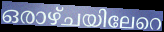
ഒരാഴ്ചയിലേറെ